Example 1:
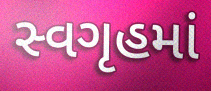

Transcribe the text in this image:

સ્વગૃહમાં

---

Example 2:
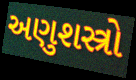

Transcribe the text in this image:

અણુશસ્ત્રો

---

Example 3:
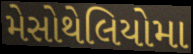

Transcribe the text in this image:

મેસોથેલિયોમા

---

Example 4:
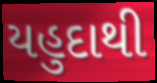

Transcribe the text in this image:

યહુદાથી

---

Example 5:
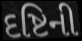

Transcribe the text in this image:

દષ્ટિની